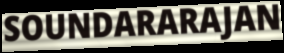
SOUNDARARAJAN